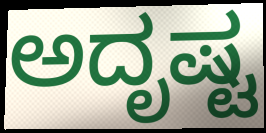
ಅದೃಷ್ಟ